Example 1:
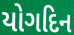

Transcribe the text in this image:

યોગદિન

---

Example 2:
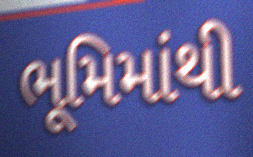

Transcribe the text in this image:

ભૂમિમાંથી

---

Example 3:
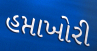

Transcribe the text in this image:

હપ્તાખોરી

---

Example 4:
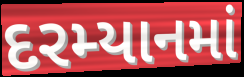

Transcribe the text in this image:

દરમ્યાનમાં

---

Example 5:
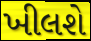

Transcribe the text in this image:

ખીલશે